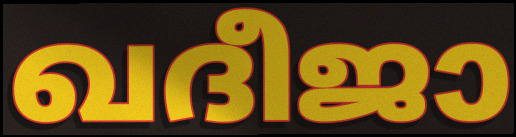
ഖദീജാ